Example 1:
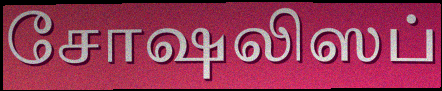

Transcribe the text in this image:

சோஷலிஸப்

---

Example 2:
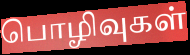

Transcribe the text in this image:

பொழிவுகள்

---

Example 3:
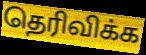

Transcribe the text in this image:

தெரிவிக்க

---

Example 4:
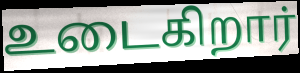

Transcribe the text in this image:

உடைகிறார்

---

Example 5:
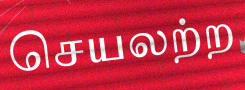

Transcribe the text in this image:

செயலற்ற